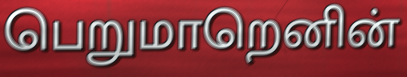
பெறுமாறெனின்